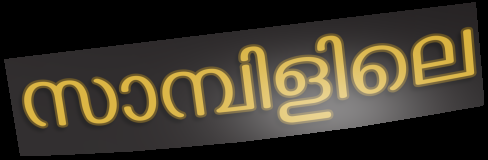
സാമ്പിളിലെ